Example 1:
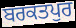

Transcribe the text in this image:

ਬਰਕਤਪੁਰ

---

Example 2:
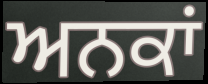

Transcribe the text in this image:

ਅਨਕਾਂ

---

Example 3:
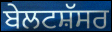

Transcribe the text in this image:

ਬੇਲਟਸ਼ੱਸਰ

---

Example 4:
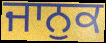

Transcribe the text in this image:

ਜਾਨੁਕ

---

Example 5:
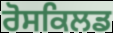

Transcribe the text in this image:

ਰੋਸਕਿਲਡ